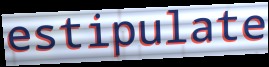
estipulate